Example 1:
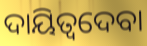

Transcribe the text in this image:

ଦାୟିତ୍ୱଦେବା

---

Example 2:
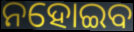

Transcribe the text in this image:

ନହୋଇବ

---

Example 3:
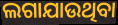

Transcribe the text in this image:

ଲଗାଯାଉଥିବା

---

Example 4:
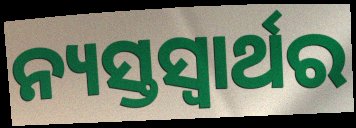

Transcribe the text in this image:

ନ୍ୟସ୍ତସ୍ୱାର୍ଥର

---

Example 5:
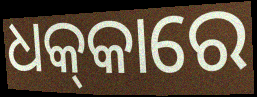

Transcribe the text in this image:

ଧକ୍‌କାରେ